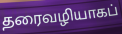
தரைவழியாகப்